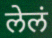
लेलं